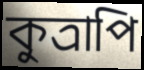
কুত্রাপি